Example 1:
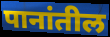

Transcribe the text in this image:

पानांतील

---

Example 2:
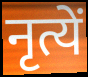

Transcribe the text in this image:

नृत्यें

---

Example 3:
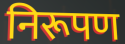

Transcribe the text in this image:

निरूपण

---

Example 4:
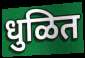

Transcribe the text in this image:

धुळित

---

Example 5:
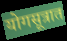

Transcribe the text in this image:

योगसूत्रात